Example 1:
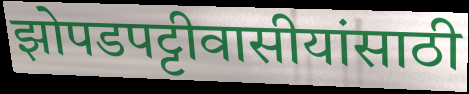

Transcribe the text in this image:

झोपडपट्टीवासीयांसाठी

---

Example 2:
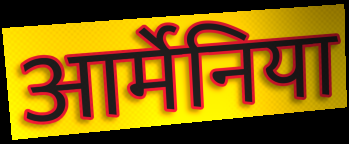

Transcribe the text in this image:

आर्मेनिया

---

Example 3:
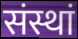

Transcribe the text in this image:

संस्थां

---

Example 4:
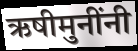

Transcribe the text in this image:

ऋषीमुनींनी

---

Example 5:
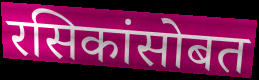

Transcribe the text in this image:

रसिकांसोबत